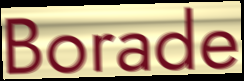
Borade